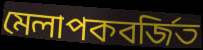
মেলাপকবর্জিত